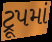
ટ્રૂપમાં